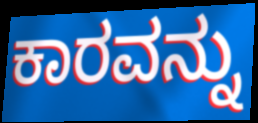
ಕಾರವನ್ನು